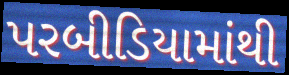
પરબીડિયામાંથી